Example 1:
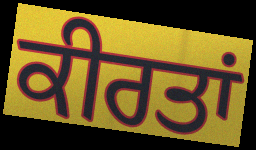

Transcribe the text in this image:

ਕੀਰਤਾਂ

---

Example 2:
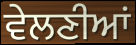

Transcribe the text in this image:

ਵੇਲਣੀਆਂ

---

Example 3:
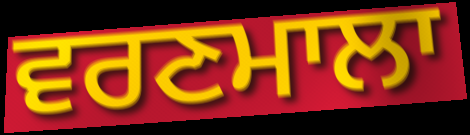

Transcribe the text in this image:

ਵਰਣਮਾਲਾ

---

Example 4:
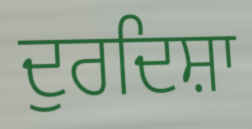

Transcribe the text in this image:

ਦੁਰਦਿਸ਼ਾ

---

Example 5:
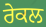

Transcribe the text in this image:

ਰੇਕਲ